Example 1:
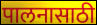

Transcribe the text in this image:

पालनासाठी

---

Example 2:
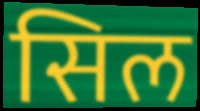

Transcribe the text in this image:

सिल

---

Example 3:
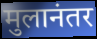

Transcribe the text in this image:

मुलानंतर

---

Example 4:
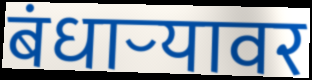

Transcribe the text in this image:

बंधाऱ्यावर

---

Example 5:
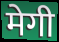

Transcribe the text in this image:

मेगी